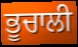
ਭੂਚਾਲੀ